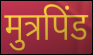
मुत्रपिंड